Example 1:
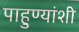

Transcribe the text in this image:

पाहुण्यांशी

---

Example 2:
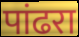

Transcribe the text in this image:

पांढरा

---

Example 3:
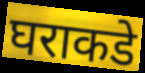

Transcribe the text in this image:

घराकडे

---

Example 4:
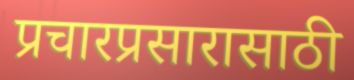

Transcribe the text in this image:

प्रचारप्रसारासाठी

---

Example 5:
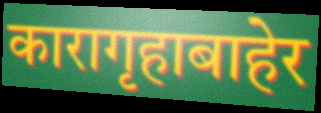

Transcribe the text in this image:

कारागृहाबाहेर